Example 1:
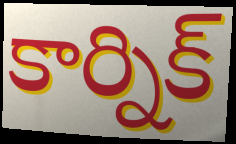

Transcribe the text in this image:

కార్నిక్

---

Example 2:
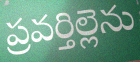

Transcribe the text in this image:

ప్రవర్తిల్లెను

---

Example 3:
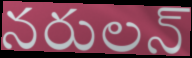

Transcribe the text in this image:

నరులన్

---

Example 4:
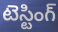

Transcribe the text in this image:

టెస్టింగ్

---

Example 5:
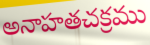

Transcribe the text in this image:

అనాహతచక్రము